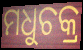
ମଧୁଚକ୍ର